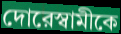
দোরেস্বামীকে